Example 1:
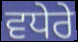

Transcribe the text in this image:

ਵਧੇਰੇ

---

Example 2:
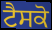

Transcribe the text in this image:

ਟੈਸਕੋ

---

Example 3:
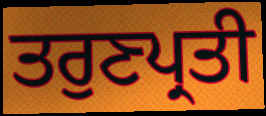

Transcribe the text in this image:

ਤਰੁਣਪ੍ਰਤੀ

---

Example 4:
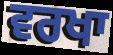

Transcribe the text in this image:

ਵਰਖਾ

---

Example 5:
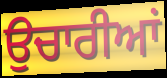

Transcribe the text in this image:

ਉਚਾਰੀਆਂ